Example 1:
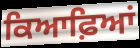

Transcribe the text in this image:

ਕਿਆਫ਼ਿਆਂ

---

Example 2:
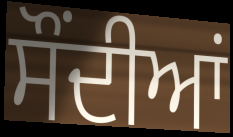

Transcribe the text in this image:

ਸੌਂਦੀਆਂ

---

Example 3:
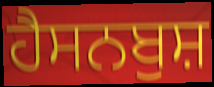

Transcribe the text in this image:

ਹੈਸਨਬੁਸ਼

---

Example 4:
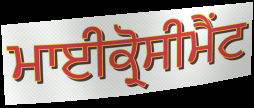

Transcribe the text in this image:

ਮਾਈਕ੍ਰੋਸੀਮੈਂਟ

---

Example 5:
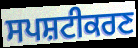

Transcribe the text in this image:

ਸਪਸ਼ਟੀਕਰਣ